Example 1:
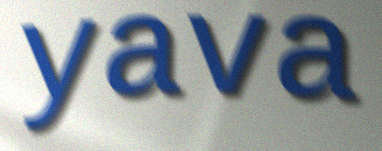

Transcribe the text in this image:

yava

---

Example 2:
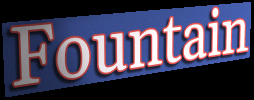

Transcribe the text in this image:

Fountain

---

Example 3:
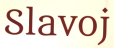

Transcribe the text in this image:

Slavoj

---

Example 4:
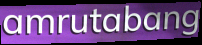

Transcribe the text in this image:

amrutabang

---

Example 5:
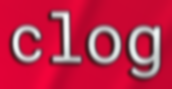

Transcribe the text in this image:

clog